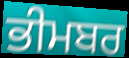
ਭੀਮਬਰ